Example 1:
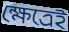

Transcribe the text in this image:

ক্ষেত্ৰেই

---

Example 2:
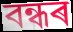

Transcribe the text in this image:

বন্ধৰ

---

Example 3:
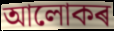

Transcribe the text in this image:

আলোকৰ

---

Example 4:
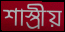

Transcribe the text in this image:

শাস্ত্ৰীয়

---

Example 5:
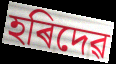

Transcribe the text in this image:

হৰিদেৱ